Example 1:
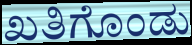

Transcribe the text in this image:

ಖತಿಗೊಂಡು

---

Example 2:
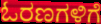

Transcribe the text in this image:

ಓರಣಗಳಿಗೆ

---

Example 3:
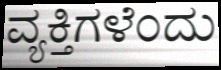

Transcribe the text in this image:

ವ್ಯಕ್ತಿಗಳೆಂದು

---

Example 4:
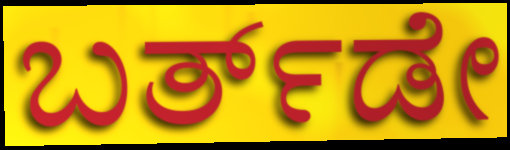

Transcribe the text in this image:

ಬರ್ತ್‌ಡೇ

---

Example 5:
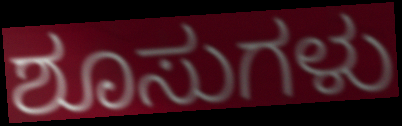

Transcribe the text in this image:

ಶೂಸುಗಳು